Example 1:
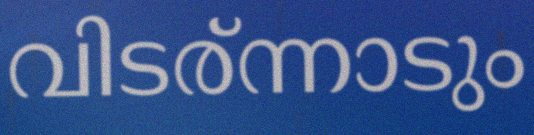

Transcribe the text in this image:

വിടര്ന്നാടും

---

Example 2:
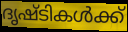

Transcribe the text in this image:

ദൃഷ്ടികൾക്ക്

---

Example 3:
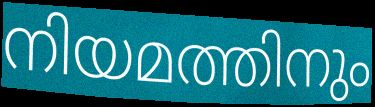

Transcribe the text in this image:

നിയമത്തിനും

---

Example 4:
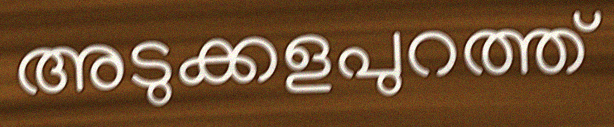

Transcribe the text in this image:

അടുക്കളപുറത്ത്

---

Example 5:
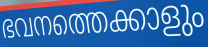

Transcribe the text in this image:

ഭവനത്തെക്കാളും